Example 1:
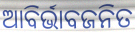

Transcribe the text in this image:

ଆବିର୍ଭାବଜନିତ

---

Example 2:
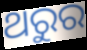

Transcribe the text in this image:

ଥରୁର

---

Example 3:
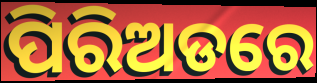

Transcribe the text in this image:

ପିରିଅଡରେ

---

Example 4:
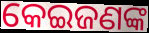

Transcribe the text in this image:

କେଇଜଣଙ୍କ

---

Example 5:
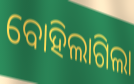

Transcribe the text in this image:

ବୋହିଲାଗିଲା